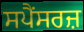
ਸਪੈਂਸਰਜ਼